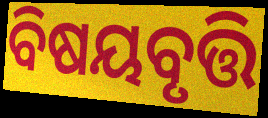
ବିଷୟବୃତ୍ତି